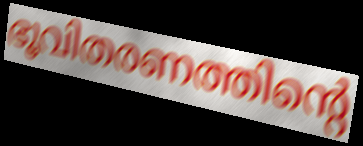
ഭൂവിതരണത്തിന്റെ